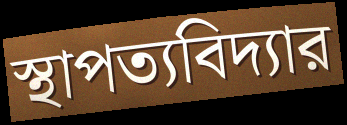
স্থাপত্যবিদ্যার